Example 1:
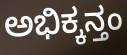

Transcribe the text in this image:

ಅಭಿಕ್ಕನ್ತಂ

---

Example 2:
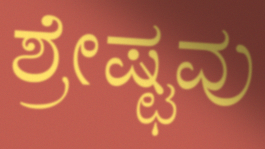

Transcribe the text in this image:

ಶ್ರೇಷ್ಟವು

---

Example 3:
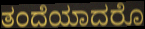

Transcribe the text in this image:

ತಂದೆಯಾದರೊ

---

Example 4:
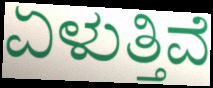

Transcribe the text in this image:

ಏಳುತ್ತಿವೆ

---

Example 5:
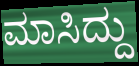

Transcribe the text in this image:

ಮಾಸಿದ್ದು